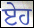
ਏਹ